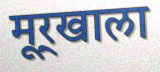
मूर्खाला